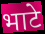
भाटे